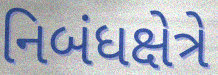
નિબંધક્ષેત્રે